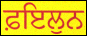
ਫ਼ਇਲੁਨ